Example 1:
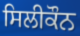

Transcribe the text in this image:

ਸਿਲੀਕੌਨ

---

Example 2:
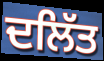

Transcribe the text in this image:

ਦਲਿੱਤ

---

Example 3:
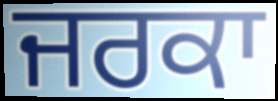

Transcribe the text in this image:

ਜਰਕਾ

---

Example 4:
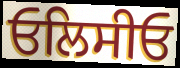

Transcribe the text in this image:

ਓਲਿਸੀਓ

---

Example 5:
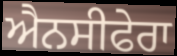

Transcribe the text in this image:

ਐਨਸੀਫੇਰਾ